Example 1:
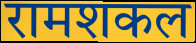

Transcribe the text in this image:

रामशकल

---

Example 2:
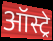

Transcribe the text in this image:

ऑस्ट्रे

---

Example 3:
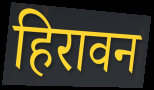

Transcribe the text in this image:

हिरावन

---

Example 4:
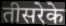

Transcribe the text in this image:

तीसरेके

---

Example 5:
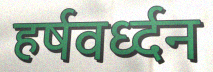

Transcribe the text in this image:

हर्षवर्ध्दन